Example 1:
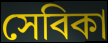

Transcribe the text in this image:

সেবিকা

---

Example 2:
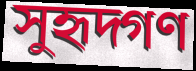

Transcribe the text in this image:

সুহৃদ্গণ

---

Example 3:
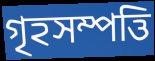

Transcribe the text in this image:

গৃহসম্পত্তি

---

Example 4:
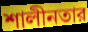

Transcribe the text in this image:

শালীনতার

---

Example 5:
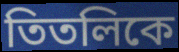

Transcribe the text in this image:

তিতলিকে